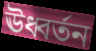
ঊধ্বর্তন